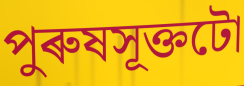
পুৰুষসূক্তটো